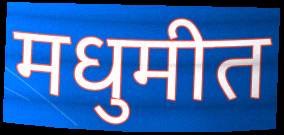
मधुमीत